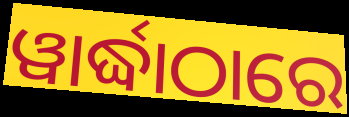
ୱାର୍ଦ୍ଧାଠାରେ